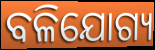
ବଳିଯୋଗ୍ୟ